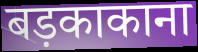
बड़काकाना